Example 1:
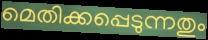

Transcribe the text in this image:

മെതിക്കപ്പെടുന്നതും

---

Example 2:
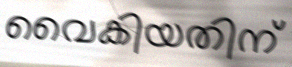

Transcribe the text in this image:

വൈകിയതിന്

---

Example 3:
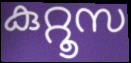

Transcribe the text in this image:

കുറ്റൂസ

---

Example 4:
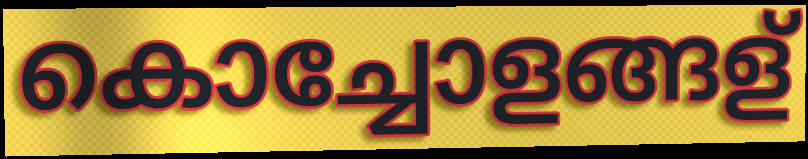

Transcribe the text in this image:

കൊച്ചോളങ്ങള്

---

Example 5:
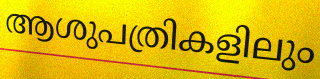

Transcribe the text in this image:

ആശുപത്രികളിലും